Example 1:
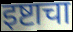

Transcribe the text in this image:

इष्टाचा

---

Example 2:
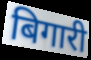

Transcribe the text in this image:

बिगारी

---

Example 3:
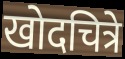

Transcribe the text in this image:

खोदचित्रे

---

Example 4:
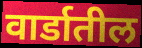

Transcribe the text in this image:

वार्डातील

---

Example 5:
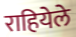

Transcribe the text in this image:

राहियेले